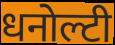
धनोल्‍टी